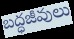
బద్ధజీవులు